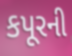
કપૂરની